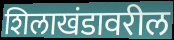
शिलाखंडावरील